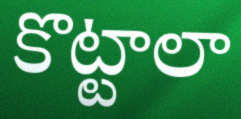
కొట్టాలా